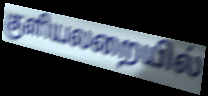
குளியலறையில்